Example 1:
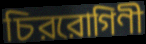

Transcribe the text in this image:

চিররোগিণী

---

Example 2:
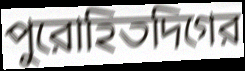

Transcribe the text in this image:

পুরোহিতদিগের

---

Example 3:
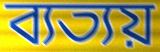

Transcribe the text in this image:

ব্যত্যয়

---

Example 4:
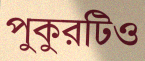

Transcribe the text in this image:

পুকুরটিও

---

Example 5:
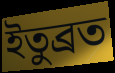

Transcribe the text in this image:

ইতুব্রত